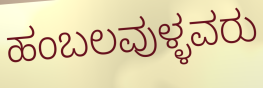
ಹಂಬಲವುಳ್ಳವರು